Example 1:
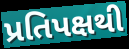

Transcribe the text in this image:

પ્રતિપક્ષથી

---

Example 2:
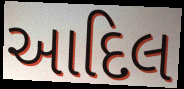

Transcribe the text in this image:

આદિલ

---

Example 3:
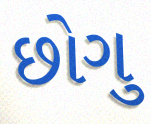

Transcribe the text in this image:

છોગુ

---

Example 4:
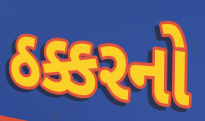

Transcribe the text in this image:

ઠક્કરનો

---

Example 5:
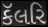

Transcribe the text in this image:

કૅલરિ